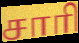
சாரி